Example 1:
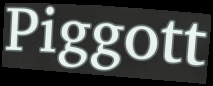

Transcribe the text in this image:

Piggott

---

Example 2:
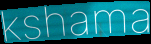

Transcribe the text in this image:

kshama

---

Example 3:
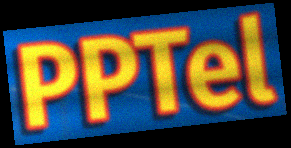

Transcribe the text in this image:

PPTel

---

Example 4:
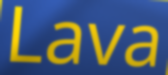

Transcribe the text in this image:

Lava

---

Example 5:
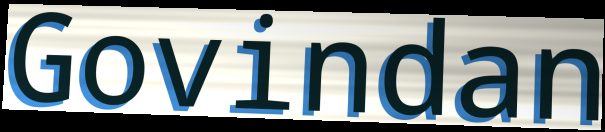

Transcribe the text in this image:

Govindan